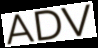
ADV